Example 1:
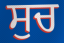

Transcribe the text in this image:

ਸੁਚ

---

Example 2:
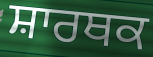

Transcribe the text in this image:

ਸ਼ਾਰਥਕ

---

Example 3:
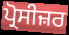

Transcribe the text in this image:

ਪ੍ਰੋਸੀਜ਼ਰ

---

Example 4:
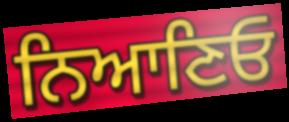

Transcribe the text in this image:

ਨਿਆਣਿਓ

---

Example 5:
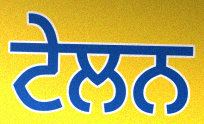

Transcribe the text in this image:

ਟੇਲਨ